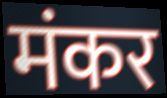
मंकर